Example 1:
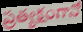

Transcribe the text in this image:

ప్రత్యక్షంగానో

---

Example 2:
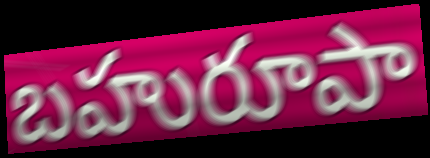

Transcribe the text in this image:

బహురూపా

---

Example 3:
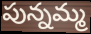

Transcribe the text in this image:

పున్నమ్మ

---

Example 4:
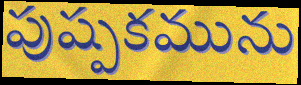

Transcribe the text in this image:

పుష్పకమును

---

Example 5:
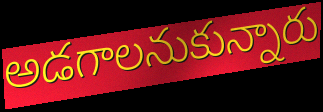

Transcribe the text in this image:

అడగాలనుకున్నారు